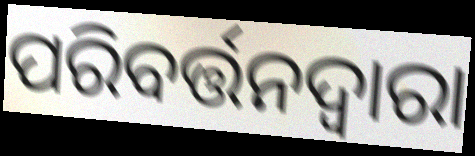
ପରିବର୍ତ୍ତନଦ୍ୱାରା